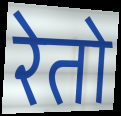
रेतो